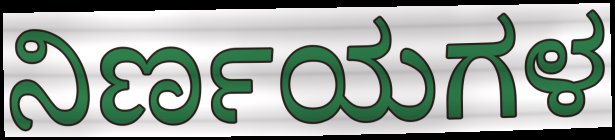
ನಿರ್ಣಯಗಳ